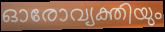
ഓരോവ്യക്തിയും